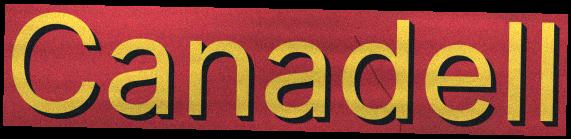
Canadell